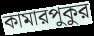
কামারপুকুর